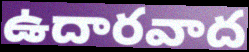
ఉదారవాద